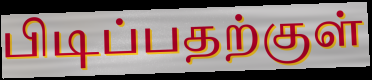
பிடிப்பதற்குள்